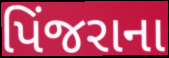
પિંજરાના